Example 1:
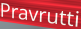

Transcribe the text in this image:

Pravrutti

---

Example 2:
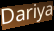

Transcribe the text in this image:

Dariya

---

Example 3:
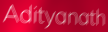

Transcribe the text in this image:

Adityanath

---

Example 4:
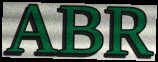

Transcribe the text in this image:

ABR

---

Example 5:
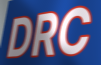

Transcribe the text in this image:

DRC